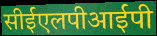
सीईएलपीआईपी